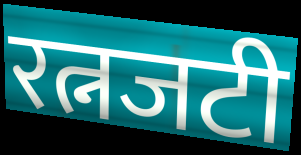
रत्नजटी